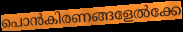
പൊൻകിരണങ്ങളേൽക്കേ